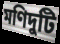
মণিদুটি